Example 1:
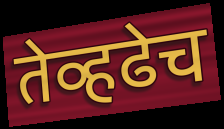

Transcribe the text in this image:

तेव्हढेच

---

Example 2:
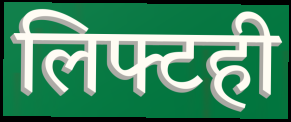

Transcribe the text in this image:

लिफ्टही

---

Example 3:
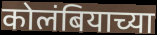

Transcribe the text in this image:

कोलंबियाच्या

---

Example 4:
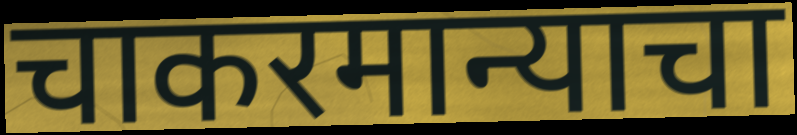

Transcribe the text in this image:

चाकरमान्याचा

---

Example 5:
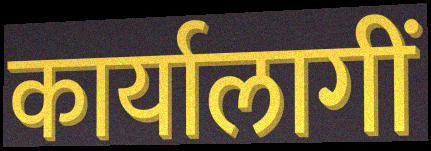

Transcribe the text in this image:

कार्यालागीं